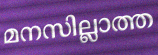
മനസില്ലാത്ത